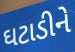
ઘટાડીને